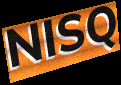
NISQ